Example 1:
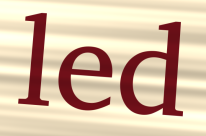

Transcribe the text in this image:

led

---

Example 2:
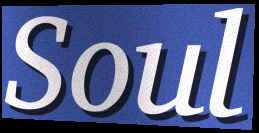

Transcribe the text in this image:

Soul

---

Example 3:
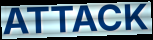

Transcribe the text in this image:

ATTACK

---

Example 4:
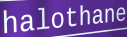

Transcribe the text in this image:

halothane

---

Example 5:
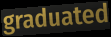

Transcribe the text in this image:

graduated